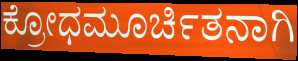
ಕ್ರೋಧಮೂರ್ಚಿತನಾಗಿ